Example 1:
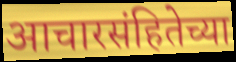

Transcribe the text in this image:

आचारसंहितेच्या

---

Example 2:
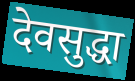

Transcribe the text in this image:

देवसुद्धा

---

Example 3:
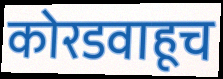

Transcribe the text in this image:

कोरडवाहूच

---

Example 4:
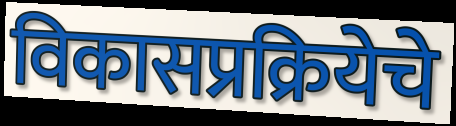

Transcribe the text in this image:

विकासप्रक्रियेचे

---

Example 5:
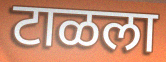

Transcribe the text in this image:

टाळला